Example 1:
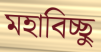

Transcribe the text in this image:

মহাবিচ্ছু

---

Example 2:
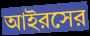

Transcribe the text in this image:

আইরসের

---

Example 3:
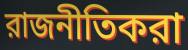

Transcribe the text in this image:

রাজনীতিকরা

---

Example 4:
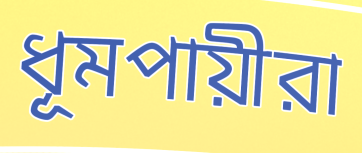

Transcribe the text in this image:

ধূমপায়ীরা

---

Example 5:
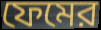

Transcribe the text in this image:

ফেমের